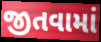
જીતવામાં